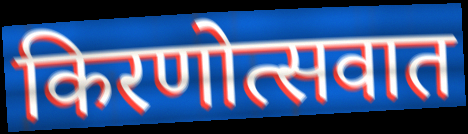
किरणोत्सवात